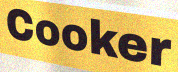
Cooker